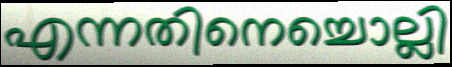
എന്നതിനെച്ചൊല്ലി